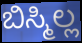
ಬಿಸ್ಮಿಲ್ಲ